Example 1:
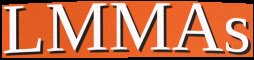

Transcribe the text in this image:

LMMAs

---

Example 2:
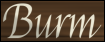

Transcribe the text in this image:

Burm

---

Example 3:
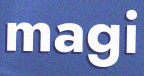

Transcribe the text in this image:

magi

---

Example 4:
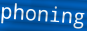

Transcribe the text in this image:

phoning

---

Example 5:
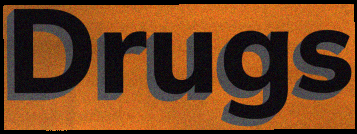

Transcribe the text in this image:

Drugs